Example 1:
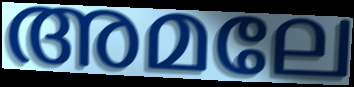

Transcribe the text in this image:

അമലേ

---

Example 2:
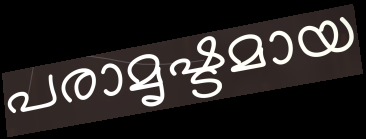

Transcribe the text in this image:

പരാമൃഷ്ടമായ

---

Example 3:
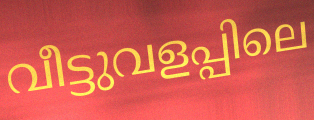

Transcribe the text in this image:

വീട്ടുവളപ്പിലെ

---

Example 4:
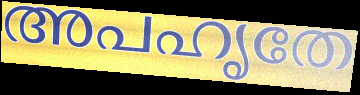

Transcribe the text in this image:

അപഹൃതേ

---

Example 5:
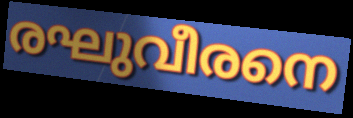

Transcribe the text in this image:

രഘുവീരനെ